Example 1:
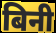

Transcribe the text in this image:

बिनी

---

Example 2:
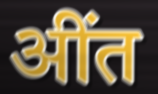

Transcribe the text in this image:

अींत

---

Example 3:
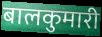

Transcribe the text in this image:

बालकुमारी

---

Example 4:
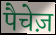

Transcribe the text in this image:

पैचेज़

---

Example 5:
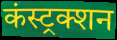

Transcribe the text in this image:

कंस्ट्रक्शन